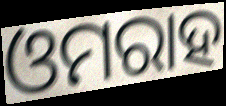
ଓମରାହ